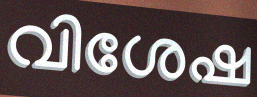
വിശേഷ